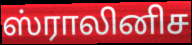
ஸ்ராலினிச